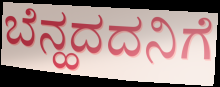
ಬೆನ್ಹದದನಿಗೆ